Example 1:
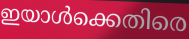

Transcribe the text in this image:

ഇയാൾക്കെതിരെ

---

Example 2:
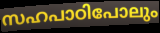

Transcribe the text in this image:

സഹപാഠിപോലും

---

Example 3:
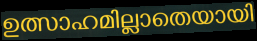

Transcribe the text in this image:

ഉത്സാഹമില്ലാതെയായി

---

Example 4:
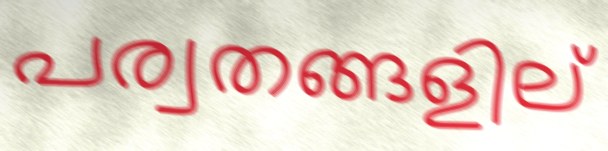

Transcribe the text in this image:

പര്വതങ്ങളില്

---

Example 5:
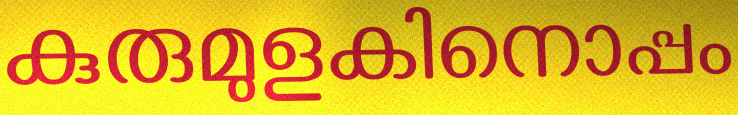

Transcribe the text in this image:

കുരുമുളകിനൊപ്പം